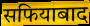
सफियाबाद